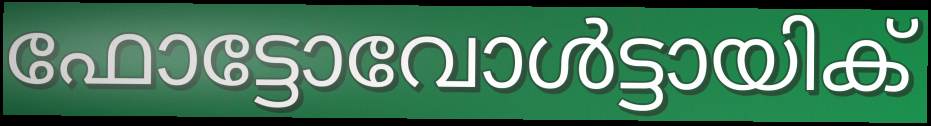
ഫോട്ടോവോൾട്ടായിക്